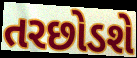
તરછોડશે